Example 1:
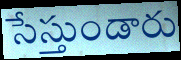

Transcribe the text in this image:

సేస్తుండారు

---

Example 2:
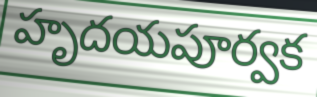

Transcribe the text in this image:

హృదయపూర్వక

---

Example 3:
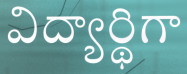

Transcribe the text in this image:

విద్యార్థిగా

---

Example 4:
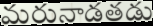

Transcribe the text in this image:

మరునాడతడు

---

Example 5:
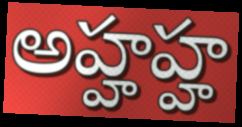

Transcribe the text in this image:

అహ్హహ్హ